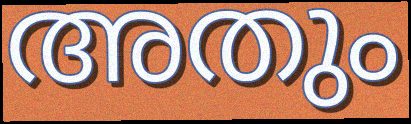
അതും